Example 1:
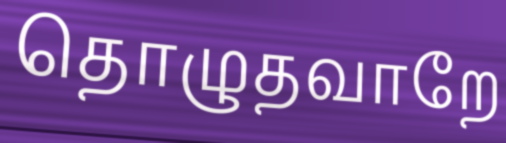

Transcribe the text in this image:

தொழுதவாறே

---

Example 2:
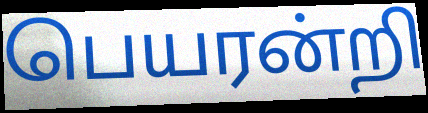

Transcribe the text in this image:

பெயரன்றி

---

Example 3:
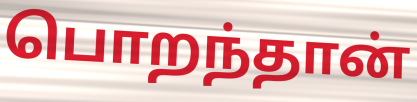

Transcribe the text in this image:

பொறந்தான்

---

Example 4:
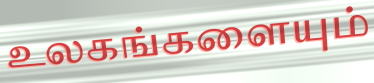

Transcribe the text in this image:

உலகங்களையும்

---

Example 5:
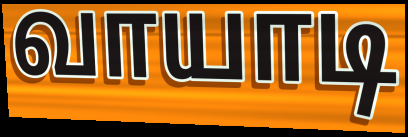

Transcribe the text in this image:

வாயாடி